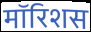
मॉरिशस